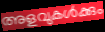
അളവുകൾക്കും